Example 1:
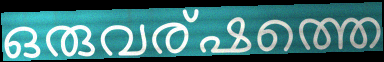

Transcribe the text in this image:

ഒരുവര്ഷത്തെ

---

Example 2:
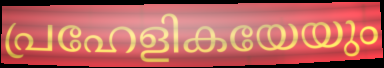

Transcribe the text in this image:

പ്രഹേളികയേയും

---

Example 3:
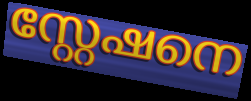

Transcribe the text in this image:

സ്റ്റേഷനെ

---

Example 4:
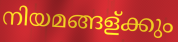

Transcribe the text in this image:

നിയമങ്ങള്ക്കും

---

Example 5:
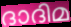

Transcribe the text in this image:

ദാദിമ